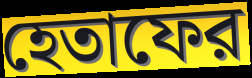
হেতাফের